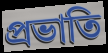
প্রভাতি